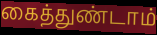
கைத்துண்டாம்